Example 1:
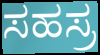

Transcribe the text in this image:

ಸಹಸ್ರ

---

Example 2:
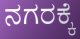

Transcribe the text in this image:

ನಗರಕ್ಕೆ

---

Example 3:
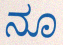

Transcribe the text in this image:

ನೂ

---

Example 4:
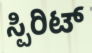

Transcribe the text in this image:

ಸ್ಪಿರಿಟ್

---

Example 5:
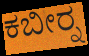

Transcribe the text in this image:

ಕಬೀರ್‍ನ